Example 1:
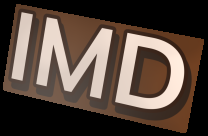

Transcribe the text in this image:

IMD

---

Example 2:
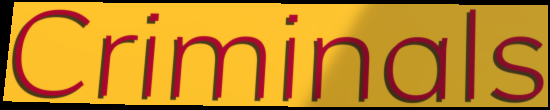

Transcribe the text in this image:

Criminals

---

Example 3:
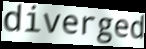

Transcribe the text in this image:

diverged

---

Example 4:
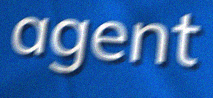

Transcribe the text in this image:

agent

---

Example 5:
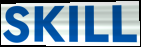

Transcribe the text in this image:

SKILL